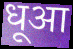
धूआ